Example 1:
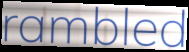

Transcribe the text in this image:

rambled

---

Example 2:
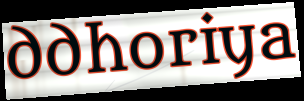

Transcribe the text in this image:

ddhoriya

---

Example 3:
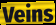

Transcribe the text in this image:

Veins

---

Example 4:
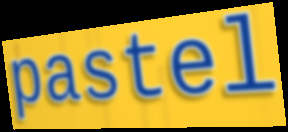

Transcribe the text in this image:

pastel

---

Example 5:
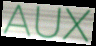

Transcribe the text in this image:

AUX